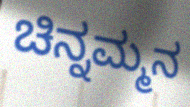
ಚಿನ್ನಮ್ಮನ